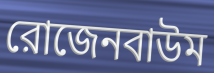
রোজেনবাউম